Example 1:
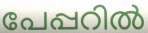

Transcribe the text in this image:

പേപ്പറിൽ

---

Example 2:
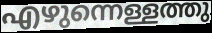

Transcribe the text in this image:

എഴുന്നെള്ളത്തു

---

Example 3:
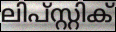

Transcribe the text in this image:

ലിപ്സ്റ്റിക്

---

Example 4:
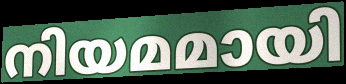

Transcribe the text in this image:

നിയമമായി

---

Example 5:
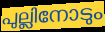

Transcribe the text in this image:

പുല്ലിനോടും